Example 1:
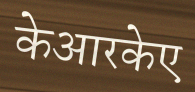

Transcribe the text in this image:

केआरकेए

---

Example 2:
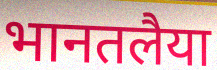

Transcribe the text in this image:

भानतलैया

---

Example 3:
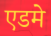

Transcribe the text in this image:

एडमे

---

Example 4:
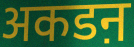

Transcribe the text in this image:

अकडऩ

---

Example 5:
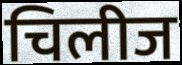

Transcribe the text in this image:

चिलीज